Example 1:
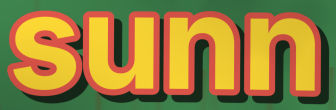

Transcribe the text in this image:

sunn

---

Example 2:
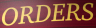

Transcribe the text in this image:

ORDERS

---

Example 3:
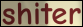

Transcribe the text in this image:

shiter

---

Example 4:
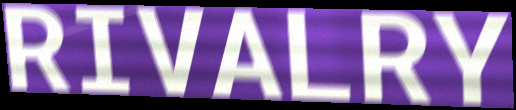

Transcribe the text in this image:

RIVALRY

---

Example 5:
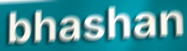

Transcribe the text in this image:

bhashan